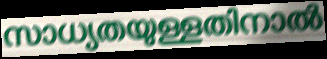
സാധ്യതയുള്ളതിനാൽ